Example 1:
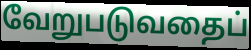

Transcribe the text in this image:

வேறுபடுவதைப்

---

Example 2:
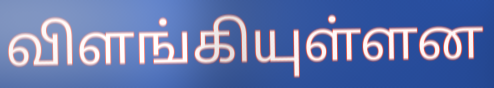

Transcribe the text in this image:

விளங்கியுள்ளன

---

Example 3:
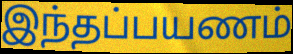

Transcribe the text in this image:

இந்தப்பயணம்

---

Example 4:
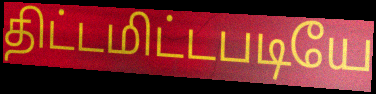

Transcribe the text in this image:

திட்டமிட்டபடியே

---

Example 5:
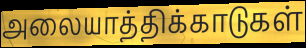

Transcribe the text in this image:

அலையாத்திக்காடுகள்